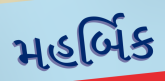
મહર્બિક